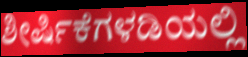
ಶೀರ್ಷಿಕೆಗಳಡಿಯಲ್ಲಿ